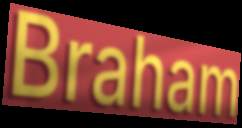
Braham